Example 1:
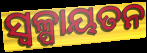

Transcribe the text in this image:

ସ୍ୱଳ୍ପାୟତନ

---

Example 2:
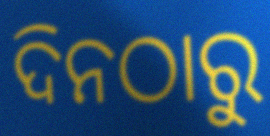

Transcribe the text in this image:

ଦିନଠାରୁ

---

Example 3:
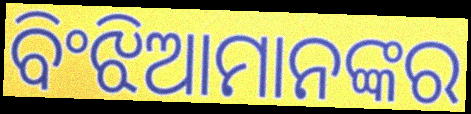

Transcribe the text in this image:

ବିଂଝିଆମାନଙ୍କର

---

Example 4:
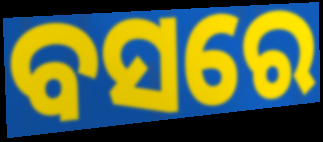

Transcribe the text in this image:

ବସରେ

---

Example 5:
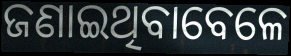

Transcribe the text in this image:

ଜଣାଇଥିବାବେଳେ